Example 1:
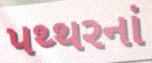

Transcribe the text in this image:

પથ્થરનાં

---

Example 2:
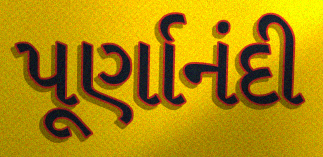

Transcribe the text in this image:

પૂર્ણાનંદી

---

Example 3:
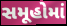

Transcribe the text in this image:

સમૂહોમાં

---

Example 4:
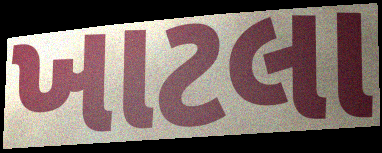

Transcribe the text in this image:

ખાટલા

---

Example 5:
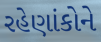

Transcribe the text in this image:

રહેણાંકોને